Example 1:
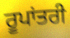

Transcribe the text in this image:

ਰੂਪਾਂਤਰੀ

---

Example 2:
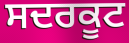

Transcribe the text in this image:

ਸਦਰਕੂਟ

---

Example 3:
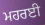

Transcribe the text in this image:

ਮਹਰਈ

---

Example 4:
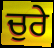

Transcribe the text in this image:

ਚੁਰੇ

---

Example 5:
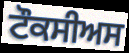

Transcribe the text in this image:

ਟੌਕਸੀਅਸ